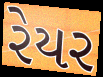
રેયર